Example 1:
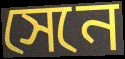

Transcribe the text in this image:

সেনে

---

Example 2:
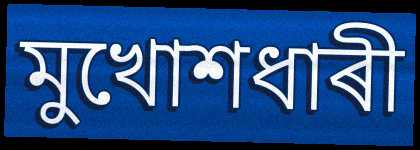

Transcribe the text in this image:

মুখোশধাৰী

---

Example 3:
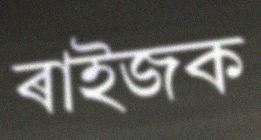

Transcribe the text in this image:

ৰাইজক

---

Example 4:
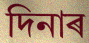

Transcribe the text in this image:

দিনাৰ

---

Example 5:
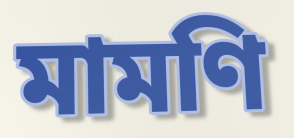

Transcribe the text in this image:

মামণি